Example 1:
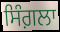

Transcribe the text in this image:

ਸਿੰਗ਼ਲਾ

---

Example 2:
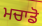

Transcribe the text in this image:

ਮਚਾਡੋ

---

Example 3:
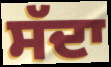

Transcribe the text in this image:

ਸੱਦਾ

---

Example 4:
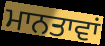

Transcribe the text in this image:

ਮਾਨਤਾਵਾਂ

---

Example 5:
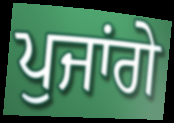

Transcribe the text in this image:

ਪੁਜਾਂਗੇ